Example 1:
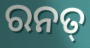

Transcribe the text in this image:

ରନତ୍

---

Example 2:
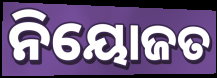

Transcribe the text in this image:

ନିୟୋଜତ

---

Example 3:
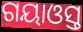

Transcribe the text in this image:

ଗୟାଓସ୍ତ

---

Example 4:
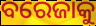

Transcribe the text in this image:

ବରେଜାକୁ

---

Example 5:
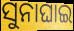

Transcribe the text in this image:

ସୁନାଘାଇ